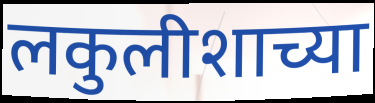
लकुलीशाच्या